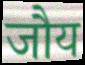
जौय